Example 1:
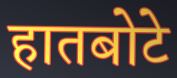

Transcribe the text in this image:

हातबोटे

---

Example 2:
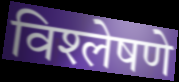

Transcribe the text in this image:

विश्लेषणे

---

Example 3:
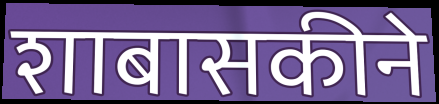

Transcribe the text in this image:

शाबासकीने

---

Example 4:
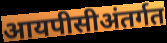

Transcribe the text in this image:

आयपीसीअंतर्गत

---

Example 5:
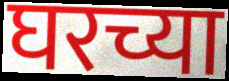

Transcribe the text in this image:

घरच्या